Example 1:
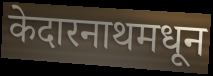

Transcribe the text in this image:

केदारनाथमधून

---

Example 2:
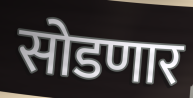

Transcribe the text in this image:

सोडणार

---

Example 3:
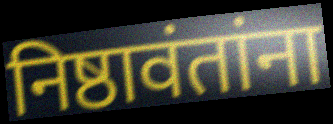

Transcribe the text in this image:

निष्ठावंतांना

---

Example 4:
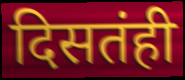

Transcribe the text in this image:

दिसतंही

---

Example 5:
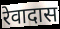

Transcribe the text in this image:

रेवादास